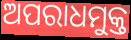
ଅପରାଧମୁକ୍ତ